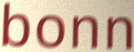
bonn